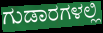
ಗುಡಾರಗಳಲ್ಲಿ